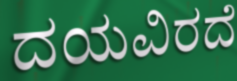
ದಯವಿರದೆ